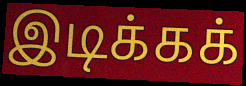
இடிக்கக்